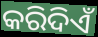
କରିଦିଏଁ